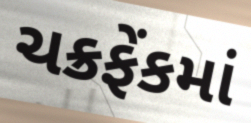
ચક્રફેંકમાં